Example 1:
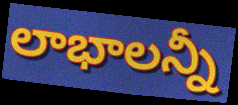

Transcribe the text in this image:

లాభాలన్నీ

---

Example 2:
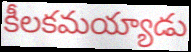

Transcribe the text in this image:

కీలకమయ్యాడు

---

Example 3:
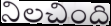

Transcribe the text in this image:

నిలచింది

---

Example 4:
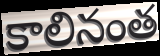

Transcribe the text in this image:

కాలినంత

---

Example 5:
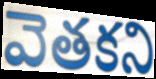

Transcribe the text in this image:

వెతకని